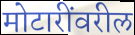
मोटारींवरील